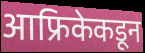
आफ्रिकेकडून